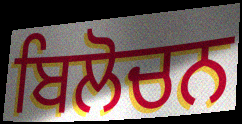
ਬਿਲੋਚਨ